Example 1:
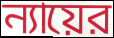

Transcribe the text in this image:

ন্যায়ের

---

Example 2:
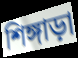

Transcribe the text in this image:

শিঙ্গাড়া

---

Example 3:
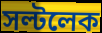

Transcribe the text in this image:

সল্টলেক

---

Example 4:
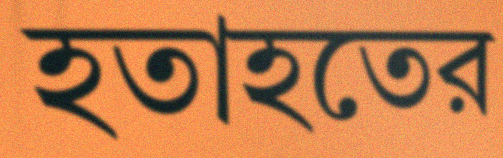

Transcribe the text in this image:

হতাহতের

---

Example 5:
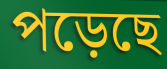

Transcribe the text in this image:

পড়েছে